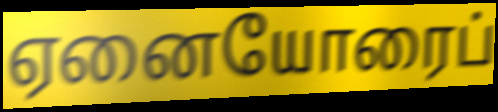
ஏனையோரைப்